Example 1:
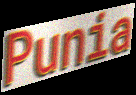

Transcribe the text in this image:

Punia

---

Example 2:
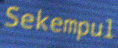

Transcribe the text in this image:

Sekempul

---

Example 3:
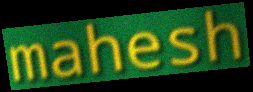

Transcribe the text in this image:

mahesh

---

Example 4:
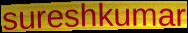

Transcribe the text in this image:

sureshkumar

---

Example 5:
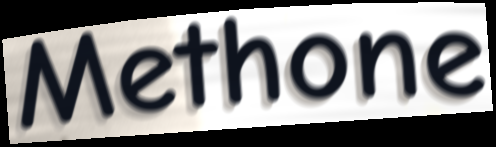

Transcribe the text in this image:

Methone